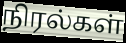
நிரல்கள்